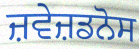
ਜ਼ਵੇਜ਼ਡਨੋਸ